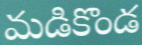
మడికొండ